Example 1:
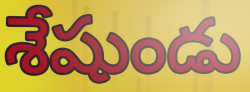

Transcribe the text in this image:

శేషుండు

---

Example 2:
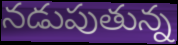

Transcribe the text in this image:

నడుపుతున్న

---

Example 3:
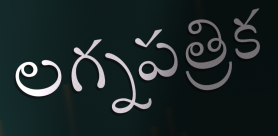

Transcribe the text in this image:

లగ్నపత్రిక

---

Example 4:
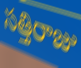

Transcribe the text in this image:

సత్తిరాజు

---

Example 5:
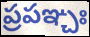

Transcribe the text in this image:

ప్రపఞ్చః